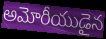
అమోరీయుడైన